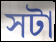
সটা